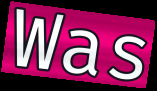
Was